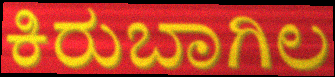
ಕಿರುಬಾಗಿಲ